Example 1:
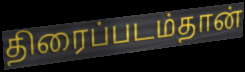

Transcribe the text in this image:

திரைப்படம்தான்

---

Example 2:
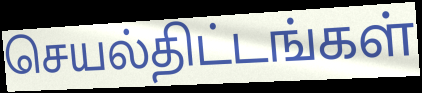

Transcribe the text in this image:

செயல்திட்டங்கள்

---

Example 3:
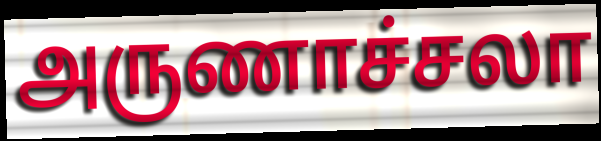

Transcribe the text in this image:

அருணாச்சலா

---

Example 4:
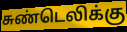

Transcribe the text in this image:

சுண்டெலிக்கு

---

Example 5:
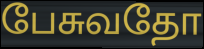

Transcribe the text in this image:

பேசுவதோ